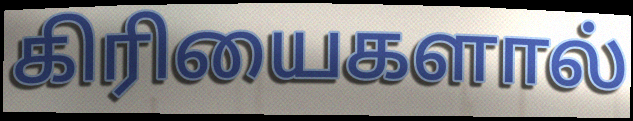
கிரியைகளால்